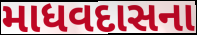
માધવદાસના